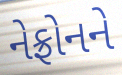
નેફ્રોનને